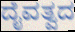
ದೈವತ್ವದ